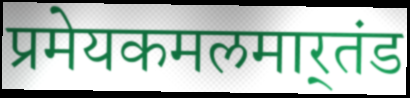
प्रमेयकमलमार्तंड